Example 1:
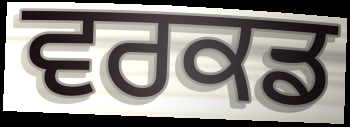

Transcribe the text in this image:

ਵਰਕਡ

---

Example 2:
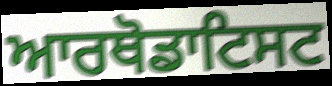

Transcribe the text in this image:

ਆਰਥੋਡਾਟਿਸਟ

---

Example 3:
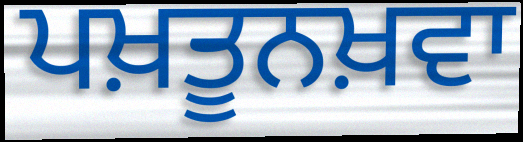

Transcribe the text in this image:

ਪਖ਼ਤੂਨਖ਼ਵਾ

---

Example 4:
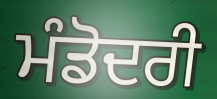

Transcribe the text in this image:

ਮੰਡੋਦਰੀ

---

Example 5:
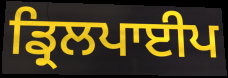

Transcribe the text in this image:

ਡ੍ਰਿਲਪਾਈਪ